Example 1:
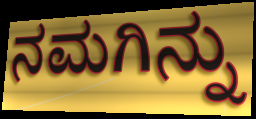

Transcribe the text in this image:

ನಮಗಿನ್ನು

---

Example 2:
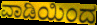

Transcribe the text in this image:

ವಾಡಿಯಿಂದ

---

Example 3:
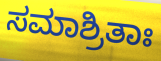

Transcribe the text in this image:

ಸಮಾಶ್ರಿತಾಃ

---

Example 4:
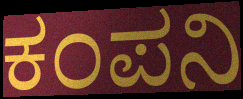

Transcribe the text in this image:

ಕಂಪನಿ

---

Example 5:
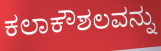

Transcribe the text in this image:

ಕಲಾಕೌಶಲವನ್ನು